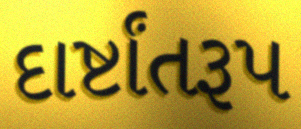
દાર્ષ્ટાંતરૂપ